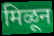
मिळून